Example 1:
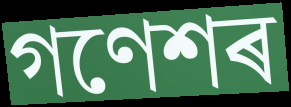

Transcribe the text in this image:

গণেশৰ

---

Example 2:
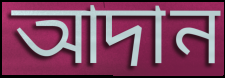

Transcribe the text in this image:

আদান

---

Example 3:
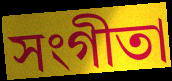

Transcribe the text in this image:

সংগীতা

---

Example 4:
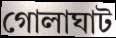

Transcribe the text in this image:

গোলাঘাট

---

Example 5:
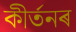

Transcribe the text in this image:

কীৰ্তনৰ